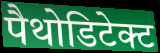
पैथोडिटेक्ट